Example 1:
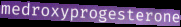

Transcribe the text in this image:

medroxyprogesterone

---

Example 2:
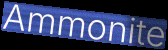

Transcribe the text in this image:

Ammonite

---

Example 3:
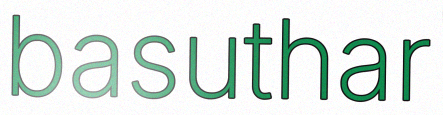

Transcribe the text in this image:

basuthar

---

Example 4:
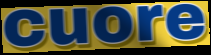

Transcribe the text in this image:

cuore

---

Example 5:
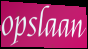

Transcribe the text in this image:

opslaan